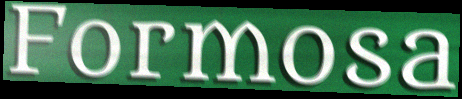
Formosa